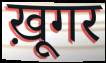
ख़ूगर